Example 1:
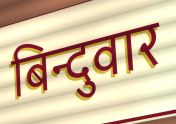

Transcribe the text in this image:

बिन्दुवार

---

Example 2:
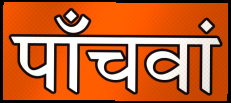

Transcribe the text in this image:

पाँचवां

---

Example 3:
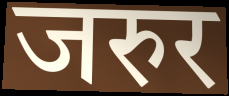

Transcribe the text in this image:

जरुर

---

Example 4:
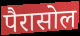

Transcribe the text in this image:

पैरासोल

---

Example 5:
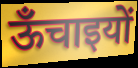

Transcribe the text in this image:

ऊँचाइयों